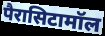
पैरासिटामॉल